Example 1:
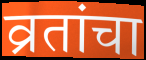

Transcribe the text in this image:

व्रतांचा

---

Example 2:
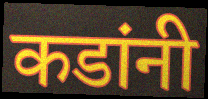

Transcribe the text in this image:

कडांनी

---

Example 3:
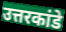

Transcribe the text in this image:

उत्तरकांडे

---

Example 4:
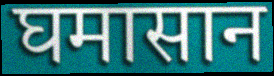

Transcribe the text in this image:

घमासान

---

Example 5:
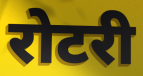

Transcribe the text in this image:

रोटरी